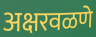
अक्षरवळणे